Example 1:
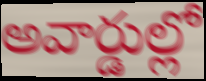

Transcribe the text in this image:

అవార్డుల్లో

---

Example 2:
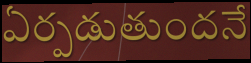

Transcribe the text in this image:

ఏర్పడుతుందనే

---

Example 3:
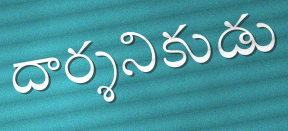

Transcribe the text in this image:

దార్శనికుడు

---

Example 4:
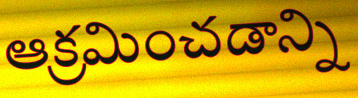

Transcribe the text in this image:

ఆక్రమించడాన్ని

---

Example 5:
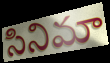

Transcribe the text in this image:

సినిమా